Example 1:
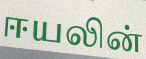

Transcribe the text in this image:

ஈயலின்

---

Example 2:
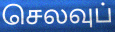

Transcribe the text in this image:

செலவுப்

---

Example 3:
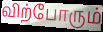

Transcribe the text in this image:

விற்போரும்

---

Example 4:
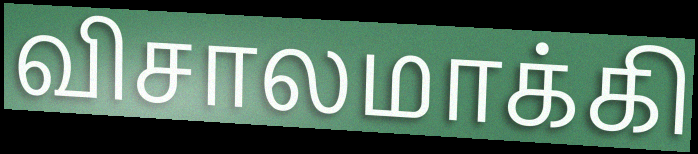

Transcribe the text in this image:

விசாலமாக்கி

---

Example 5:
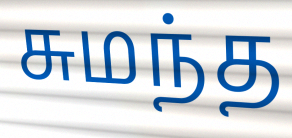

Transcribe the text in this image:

சுமந்த